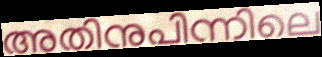
അതിനുപിന്നിലെ